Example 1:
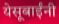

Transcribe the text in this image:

येसूबाईंनी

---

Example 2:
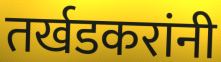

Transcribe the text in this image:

तर्खडकरांनी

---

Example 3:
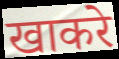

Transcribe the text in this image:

खाकरे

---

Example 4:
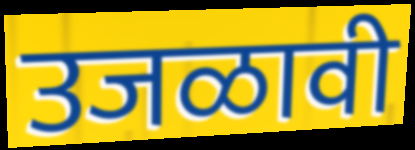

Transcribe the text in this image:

उजळावी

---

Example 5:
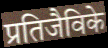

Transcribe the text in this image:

प्रतिजैविके